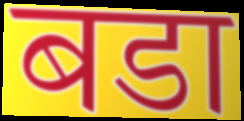
बडा